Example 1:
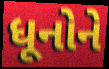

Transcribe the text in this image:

ધૂનોને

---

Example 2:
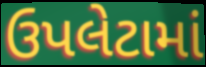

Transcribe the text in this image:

ઉપલેટામાં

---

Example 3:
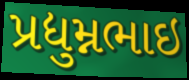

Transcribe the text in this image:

પ્રદ્યુમ્નભાઇ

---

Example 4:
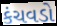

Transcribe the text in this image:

કંચવડો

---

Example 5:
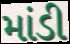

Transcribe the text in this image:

માંડી